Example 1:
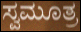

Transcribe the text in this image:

ಸ್ವಮೂತ್ರ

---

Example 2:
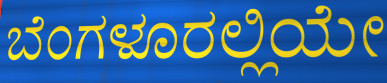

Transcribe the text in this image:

ಬೆಂಗಳೂರಲ್ಲಿಯೇ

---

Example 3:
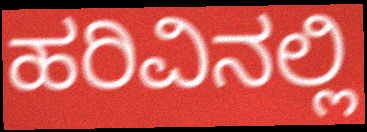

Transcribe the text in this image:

ಹರಿವಿನಲ್ಲಿ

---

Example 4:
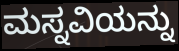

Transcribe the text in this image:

ಮಸ್ನವಿಯನ್ನು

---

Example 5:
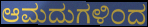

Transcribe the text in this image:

ಆಮದುಗಳಿಂದ